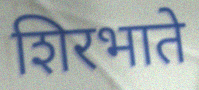
शिरभाते